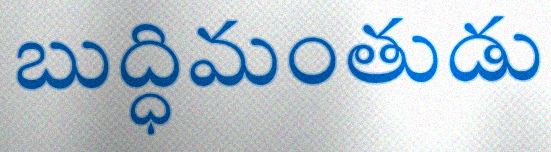
బుద్ధిమంతుడు